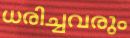
ധരിച്ചവരും